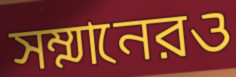
সম্মানেরও